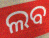
ଲବ